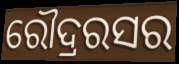
ରୌଦ୍ରରସର